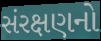
સંરક્ષણનો